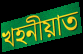
খহনীয়াত